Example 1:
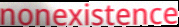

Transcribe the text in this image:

nonexistence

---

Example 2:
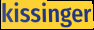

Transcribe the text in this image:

kissinger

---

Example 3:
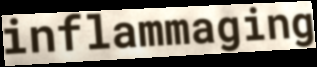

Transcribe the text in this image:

inflammaging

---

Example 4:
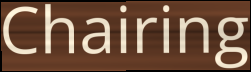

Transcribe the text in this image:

Chairing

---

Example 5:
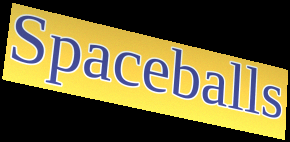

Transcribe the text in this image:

Spaceballs